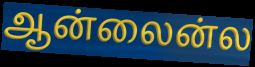
ஆன்லைன்ல